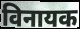
विनायक